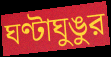
ঘণ্টাঘুঙুর